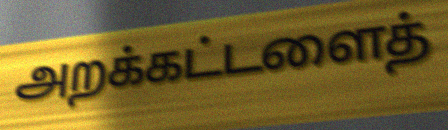
அறக்கட்டளைத்